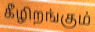
கீழிறங்கும்